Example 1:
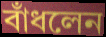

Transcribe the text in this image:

বাঁধলেন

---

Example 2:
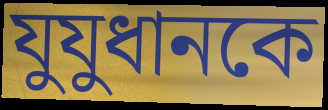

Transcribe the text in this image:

যুযুধানকে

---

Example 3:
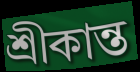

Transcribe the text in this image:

শ্রীকান্ত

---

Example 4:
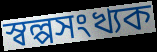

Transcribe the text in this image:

স্বল্পসংখ্যক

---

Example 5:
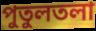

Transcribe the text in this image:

পুতুলতলা